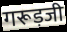
गरूड़जी